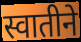
स्वातीने